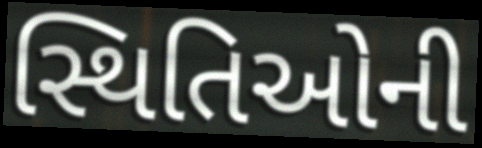
સ્થિતિઓની